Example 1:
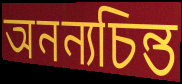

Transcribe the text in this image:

অনন্যচিন্ত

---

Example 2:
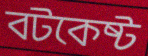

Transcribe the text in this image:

বটকেষ্ট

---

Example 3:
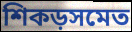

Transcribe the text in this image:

শিকড়সমেত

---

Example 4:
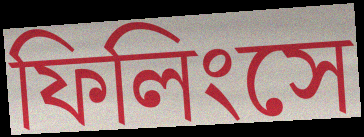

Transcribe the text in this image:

ফিলিংসে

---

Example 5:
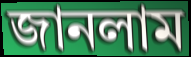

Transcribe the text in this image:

জানলাম